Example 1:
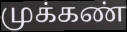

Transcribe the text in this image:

முக்கண்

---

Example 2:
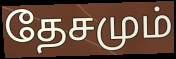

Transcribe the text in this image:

தேசமும்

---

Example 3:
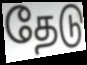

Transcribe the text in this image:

தேடு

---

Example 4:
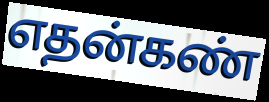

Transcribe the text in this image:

எதன்கண்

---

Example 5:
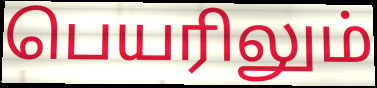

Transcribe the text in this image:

பெயரிலும்